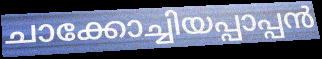
ചാക്കോച്ചിയപ്പാപ്പൻ